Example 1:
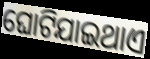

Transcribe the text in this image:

ଘୋଟିଯାଇଥାଏ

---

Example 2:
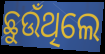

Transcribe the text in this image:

ଛୁଉଁଥିଲେ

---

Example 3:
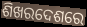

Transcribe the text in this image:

ଶିଖରଦେଶରେ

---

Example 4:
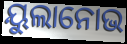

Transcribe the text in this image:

ୟୁଲାନୋଭ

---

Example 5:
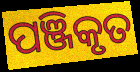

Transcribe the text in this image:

ପଞ୍ଜିକୃତ